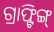
ଗ୍ରାଫ୍ଟିଙ୍ଗ୍